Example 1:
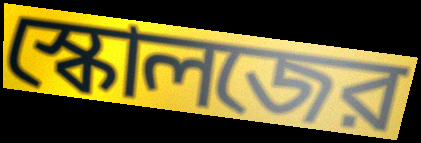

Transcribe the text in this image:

স্কোলজের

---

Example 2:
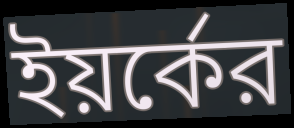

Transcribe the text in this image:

ইয়র্কের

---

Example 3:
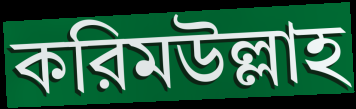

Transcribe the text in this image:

করিমউল্লাহ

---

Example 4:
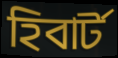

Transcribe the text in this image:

হিবার্ট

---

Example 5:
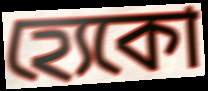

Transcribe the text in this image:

হ্যেকো